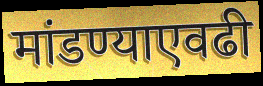
मांडण्याएवढी